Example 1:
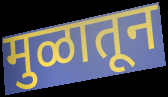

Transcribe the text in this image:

मुळातून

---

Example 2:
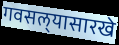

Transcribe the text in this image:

गवसल्यासारखे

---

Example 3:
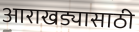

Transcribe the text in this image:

आराखड्यासाठी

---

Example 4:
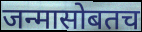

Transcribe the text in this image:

जन्मासोबतच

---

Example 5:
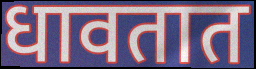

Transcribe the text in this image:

धावतात